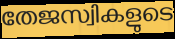
തേജസ്വികളുടെ